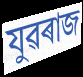
যুৱৰাজ